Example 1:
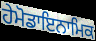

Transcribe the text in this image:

ਹੇਮੋਡਾਇਨਾਮਿਕ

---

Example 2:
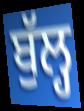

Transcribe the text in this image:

ਬੁੱਲ੍ਹ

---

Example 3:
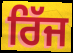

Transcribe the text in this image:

ਰਿੱਜ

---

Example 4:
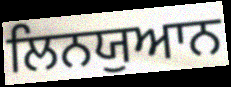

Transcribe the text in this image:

ਲਿਨਯੁਆਨ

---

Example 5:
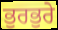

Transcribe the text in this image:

ਭੁਰਭੁਰੇ